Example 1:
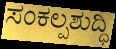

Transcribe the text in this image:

ಸಂಕಲ್ಪಶುದ್ಧಿ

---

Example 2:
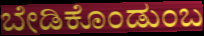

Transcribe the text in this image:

ಬೇಡಿಕೊಂಡುಂಬ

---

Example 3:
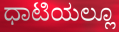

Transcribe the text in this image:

ಧಾಟಿಯಲ್ಲೂ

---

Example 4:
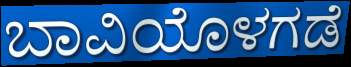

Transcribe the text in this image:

ಬಾವಿಯೊಳಗಡೆ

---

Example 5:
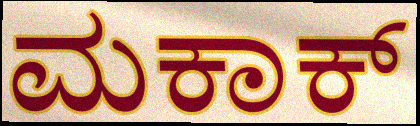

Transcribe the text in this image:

ಮಕಾಕ್